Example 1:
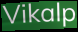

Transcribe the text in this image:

Vikalp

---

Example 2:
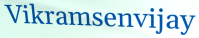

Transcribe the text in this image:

Vikramsenvijay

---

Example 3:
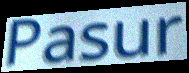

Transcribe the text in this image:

Pasur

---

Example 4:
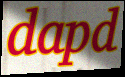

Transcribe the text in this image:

dapd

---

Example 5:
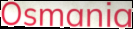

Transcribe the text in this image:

Osmania